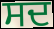
ਸਦ